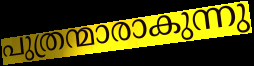
പുത്രന്മാരാകുന്നു